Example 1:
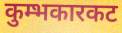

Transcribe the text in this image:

कुम्भकारकट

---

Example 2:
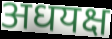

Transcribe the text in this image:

अधयक्ष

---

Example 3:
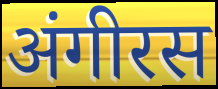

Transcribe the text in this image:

अंगीरस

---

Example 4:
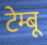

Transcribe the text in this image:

टेम्बू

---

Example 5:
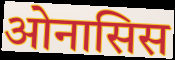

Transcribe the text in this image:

ओनासिस